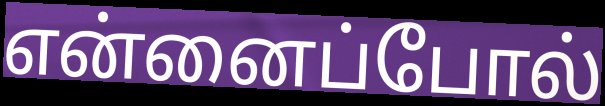
என்னைப்போல்